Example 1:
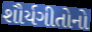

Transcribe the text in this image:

શૌર્યગીતોનો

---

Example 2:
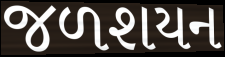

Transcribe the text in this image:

જળશયન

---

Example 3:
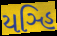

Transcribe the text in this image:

યઞ્હિ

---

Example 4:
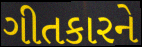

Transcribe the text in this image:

ગીતકારને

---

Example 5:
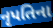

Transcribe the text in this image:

નૃપતિના